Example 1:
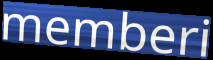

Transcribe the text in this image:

memberi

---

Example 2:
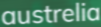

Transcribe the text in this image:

austrelia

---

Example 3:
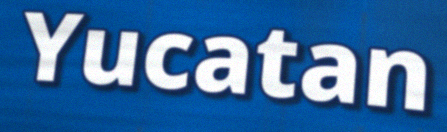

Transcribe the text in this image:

Yucatan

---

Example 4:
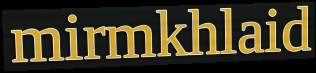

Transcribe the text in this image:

mirmkhlaid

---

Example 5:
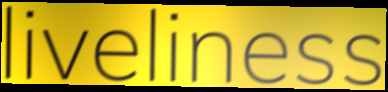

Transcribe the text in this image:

liveliness